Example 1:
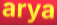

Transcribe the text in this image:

arya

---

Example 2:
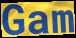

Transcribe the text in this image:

Gam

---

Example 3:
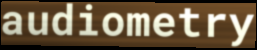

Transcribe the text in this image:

audiometry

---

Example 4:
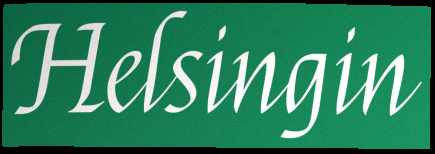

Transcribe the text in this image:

Helsingin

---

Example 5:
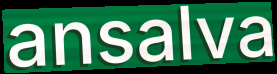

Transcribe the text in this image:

ansalva